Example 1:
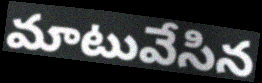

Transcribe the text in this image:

మాటువేసిన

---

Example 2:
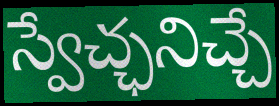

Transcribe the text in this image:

స్వేచ్ఛనిచ్చే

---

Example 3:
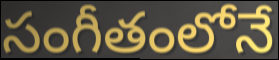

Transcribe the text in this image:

సంగీతంలోనే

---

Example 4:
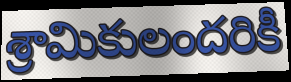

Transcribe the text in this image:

శ్రామికులందరికీ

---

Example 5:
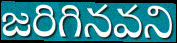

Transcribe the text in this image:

జరిగినవని